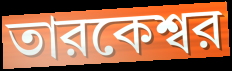
তারকেশ্বর